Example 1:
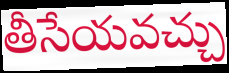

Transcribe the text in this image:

తీసేయవచ్చు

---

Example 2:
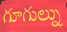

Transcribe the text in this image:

గూగుల్ను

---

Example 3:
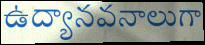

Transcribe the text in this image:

ఉద్యానవనాలుగా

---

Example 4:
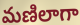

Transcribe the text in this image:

మణిలాగా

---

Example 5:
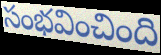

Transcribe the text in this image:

సంభవించింది